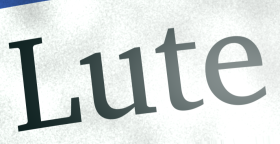
Lute